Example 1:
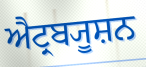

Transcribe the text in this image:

ਐਟ੍ਰਬ੍ਯੂਸ਼ਨ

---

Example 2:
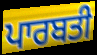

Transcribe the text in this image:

ਪਾਰਬਤੀ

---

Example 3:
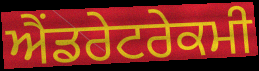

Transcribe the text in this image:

ਐਂਡਰੇਟਰੇਕਮੀ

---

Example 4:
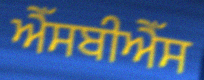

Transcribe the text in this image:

ਐੱਸਬੀਐੱਸ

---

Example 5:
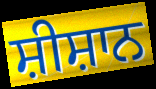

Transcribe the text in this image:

ਸ਼ੀਸ਼ਾਨ